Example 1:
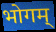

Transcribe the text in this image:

भोगम्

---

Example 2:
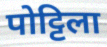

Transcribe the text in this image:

पोट्टिला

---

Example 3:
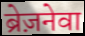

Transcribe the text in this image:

ब्रेज़नेवा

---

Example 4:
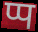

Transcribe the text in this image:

प्प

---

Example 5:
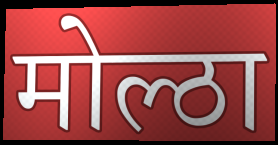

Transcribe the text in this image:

मोल्ठा